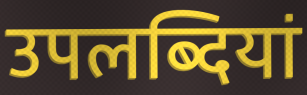
उपलब्दियां